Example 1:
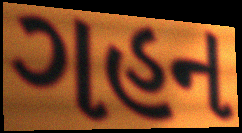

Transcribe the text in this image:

ગહન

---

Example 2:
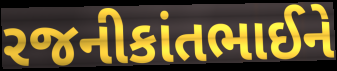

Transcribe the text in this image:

રજનીકાંતભાઈને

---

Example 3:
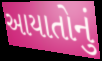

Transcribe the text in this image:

આયાતોનું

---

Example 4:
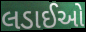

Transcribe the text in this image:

લડાઈઓ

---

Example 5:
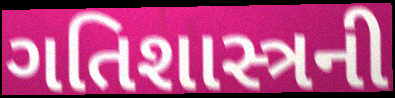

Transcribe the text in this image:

ગતિશાસ્ત્રની